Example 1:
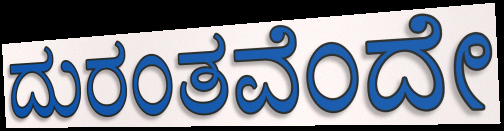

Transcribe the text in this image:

ದುರಂತವೆಂದೇ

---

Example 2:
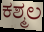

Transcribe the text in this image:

ಕಶ್ಮಲ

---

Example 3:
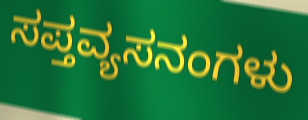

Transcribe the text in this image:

ಸಪ್ತವ್ಯಸನಂಗಳು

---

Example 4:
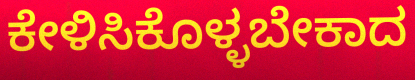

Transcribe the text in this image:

ಕೇಳಿಸಿಕೊಳ್ಳಬೇಕಾದ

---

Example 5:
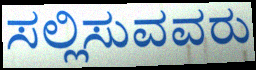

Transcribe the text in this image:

ಸಲ್ಲಿಸುವವರು